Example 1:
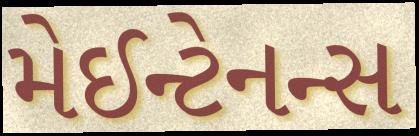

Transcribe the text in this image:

મેઈન્ટેનન્સ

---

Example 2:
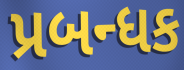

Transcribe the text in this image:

પ્રબન્ધક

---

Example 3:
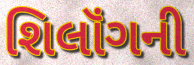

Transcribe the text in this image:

શિલૉંગની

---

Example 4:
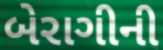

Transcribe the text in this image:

બેરાગીની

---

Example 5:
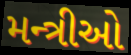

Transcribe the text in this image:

મન્ત્રીઓ